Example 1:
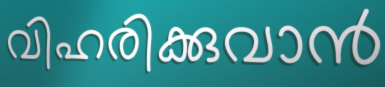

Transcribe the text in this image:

വിഹരിക്കുവാൻ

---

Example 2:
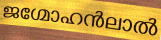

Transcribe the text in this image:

ജഗ്മോഹൻലാൽ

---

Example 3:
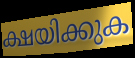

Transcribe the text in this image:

ക്ഷയിക്കുക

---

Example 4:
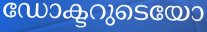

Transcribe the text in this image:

ഡോക്ടറുടെയോ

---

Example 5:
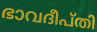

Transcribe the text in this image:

ഭാവദീപ്തി